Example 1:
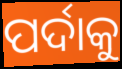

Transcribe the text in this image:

ପର୍ଦାକୁ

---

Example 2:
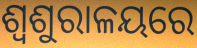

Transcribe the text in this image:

ଶ୍ୱଶୁରାଳୟରେ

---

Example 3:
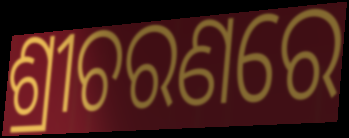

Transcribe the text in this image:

ଶ୍ରୀଚରଣରେ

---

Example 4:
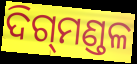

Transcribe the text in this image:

ଦିଗ୍‌ମଣ୍ଡଳ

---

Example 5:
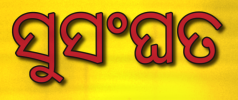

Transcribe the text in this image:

ସୁସଂଘତ